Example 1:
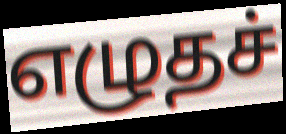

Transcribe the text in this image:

எழுதச்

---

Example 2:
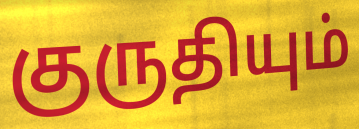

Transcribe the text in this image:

குருதியும்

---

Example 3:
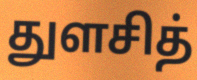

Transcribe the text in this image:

துளசித்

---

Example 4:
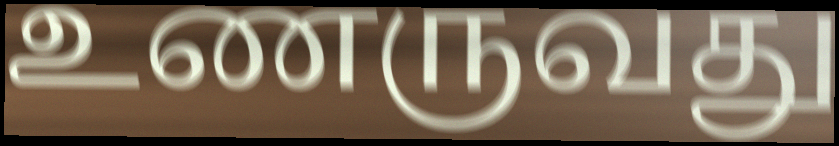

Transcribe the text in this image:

உணருவது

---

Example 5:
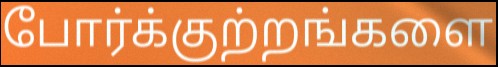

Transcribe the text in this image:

போர்க்குற்றங்களை